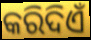
କରିଦିଏଁ